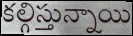
కల్గిస్తున్నాయి